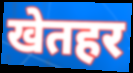
खेतहर